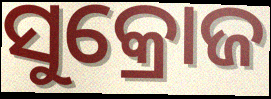
ସୁକ୍ରୋଜ